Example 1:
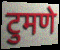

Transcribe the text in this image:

टुमणे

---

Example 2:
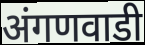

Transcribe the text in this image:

अंगणवाडी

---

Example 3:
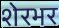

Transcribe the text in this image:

शेरभर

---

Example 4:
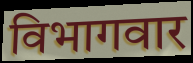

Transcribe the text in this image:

विभागवार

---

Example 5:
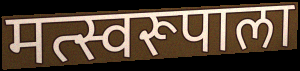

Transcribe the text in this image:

मत्स्वरूपाला